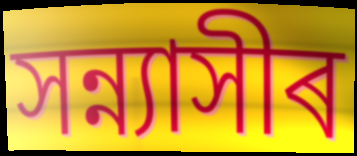
সন্ন্যাসীৰ